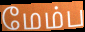
மேம்ப